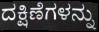
ದಕ್ಷಿಣೆಗಳನ್ನು